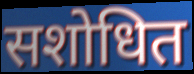
सशोधित